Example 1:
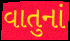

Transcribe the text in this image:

વાતુનાં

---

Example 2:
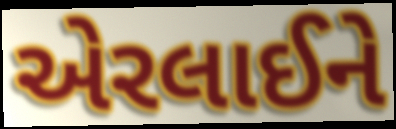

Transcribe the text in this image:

એરલાઈને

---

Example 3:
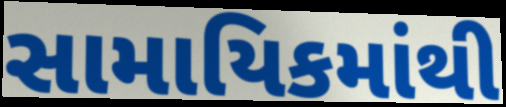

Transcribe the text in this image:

સામાયિકમાંથી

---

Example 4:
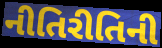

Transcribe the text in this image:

નીતિરીતિની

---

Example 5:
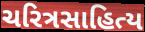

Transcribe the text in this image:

ચરિત્રસાહિત્ય